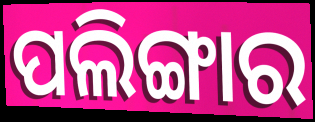
ପଲିଙ୍ଗାର